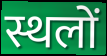
स्थलों